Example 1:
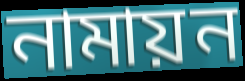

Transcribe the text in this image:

নামায়ন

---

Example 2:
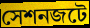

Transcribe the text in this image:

সেশনজটে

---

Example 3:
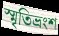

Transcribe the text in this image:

স্মৃতিভ্রংশ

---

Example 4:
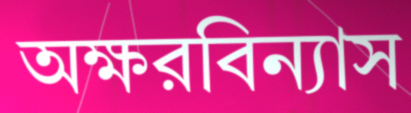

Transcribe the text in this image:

অক্ষরবিন্যাস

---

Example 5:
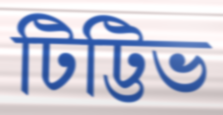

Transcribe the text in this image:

টিট্টিভ